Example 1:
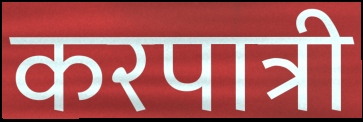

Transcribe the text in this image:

करपात्री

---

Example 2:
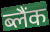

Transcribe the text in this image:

ब्लैंक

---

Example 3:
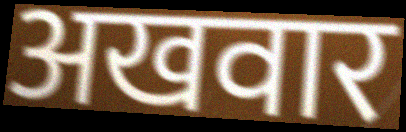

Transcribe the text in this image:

अखवार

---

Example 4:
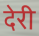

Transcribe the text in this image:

देरी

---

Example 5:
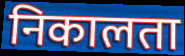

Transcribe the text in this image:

निकालता